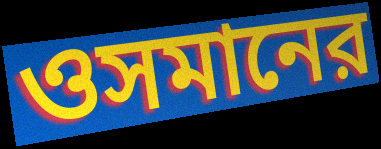
ওসমানের